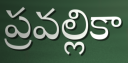
ప్రవల్లికా